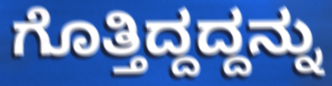
ಗೊತ್ತಿದ್ದದ್ದನ್ನು